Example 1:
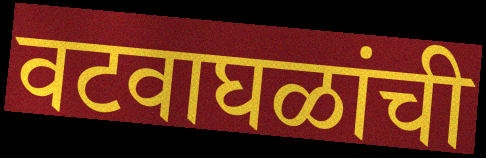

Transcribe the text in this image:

वटवाघळांची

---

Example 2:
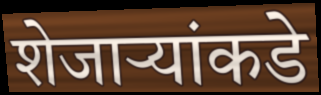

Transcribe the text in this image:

शेजाऱ्यांकडे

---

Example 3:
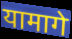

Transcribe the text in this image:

यामागे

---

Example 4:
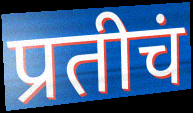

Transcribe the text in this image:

प्रतीचं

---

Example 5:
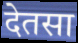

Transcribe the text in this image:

देतसा